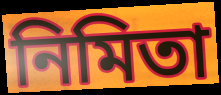
নিমিতা